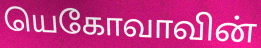
யெகோவாவின்